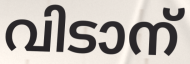
വിടാന്